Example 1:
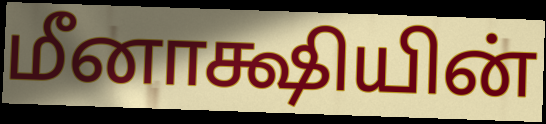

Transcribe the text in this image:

மீனாக்ஷியின்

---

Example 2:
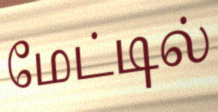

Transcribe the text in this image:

மேட்டில்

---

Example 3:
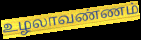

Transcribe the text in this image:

உழலாவண்ணம்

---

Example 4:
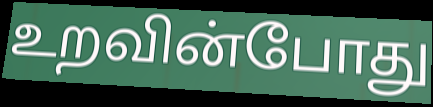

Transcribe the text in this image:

உறவின்போது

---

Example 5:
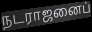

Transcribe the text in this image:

நடராஜனைப்